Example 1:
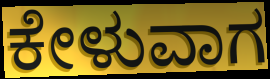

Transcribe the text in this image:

ಕೇಳುವಾಗ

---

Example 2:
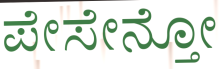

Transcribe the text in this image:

ಪೇಸೇನ್ತೋ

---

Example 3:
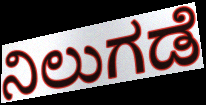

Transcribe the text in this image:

ನಿಲುಗಡೆ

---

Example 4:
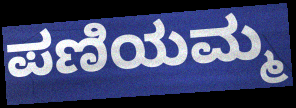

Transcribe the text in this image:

ಪಣಿಯಮ್ಮ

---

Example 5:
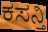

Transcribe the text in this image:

ಕಸನ್ತಿ